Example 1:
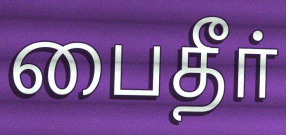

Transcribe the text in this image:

பைதீர்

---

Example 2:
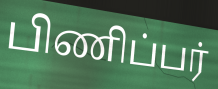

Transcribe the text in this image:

பிணிப்பர்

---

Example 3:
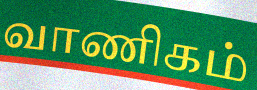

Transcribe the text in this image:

வாணிகம்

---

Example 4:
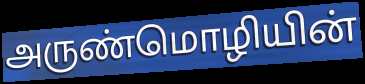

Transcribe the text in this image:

அருண்மொழியின்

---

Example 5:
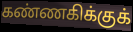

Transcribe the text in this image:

கண்ணகிக்குக்